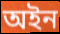
অইন